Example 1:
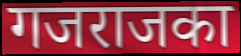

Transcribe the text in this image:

गजराजका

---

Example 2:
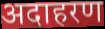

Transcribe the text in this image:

अदाहरण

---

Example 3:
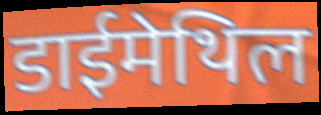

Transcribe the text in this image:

डाईमेथिल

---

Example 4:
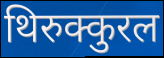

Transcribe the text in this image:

थिरुक्कुरल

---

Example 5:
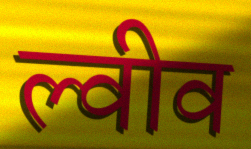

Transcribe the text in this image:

ल्वीव